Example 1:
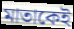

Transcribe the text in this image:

মাতাকেই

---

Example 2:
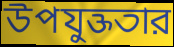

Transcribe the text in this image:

উপযুক্ততার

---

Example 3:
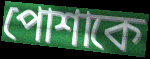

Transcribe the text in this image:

পোশাকে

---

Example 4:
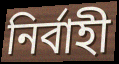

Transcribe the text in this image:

নির্বাহী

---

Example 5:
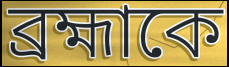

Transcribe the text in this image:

ব্রহ্মাকে